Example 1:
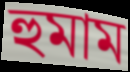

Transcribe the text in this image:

হুমাম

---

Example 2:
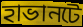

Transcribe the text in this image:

হাভানটে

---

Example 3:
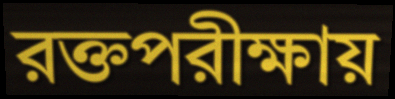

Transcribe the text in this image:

রক্তপরীক্ষায়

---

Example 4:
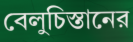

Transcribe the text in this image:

বেলুচিস্তানের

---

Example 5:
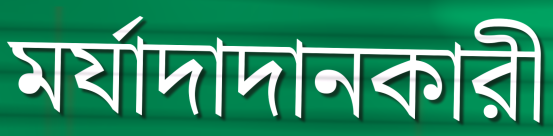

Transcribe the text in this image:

মর্যাদাদানকারী